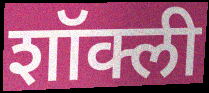
शॉक्ली